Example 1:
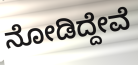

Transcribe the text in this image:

ನೋಡಿದ್ದೇವೆ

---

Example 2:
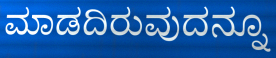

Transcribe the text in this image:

ಮಾಡದಿರುವುದನ್ನೂ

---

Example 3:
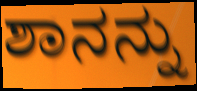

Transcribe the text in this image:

ಶಾನನ್ನು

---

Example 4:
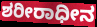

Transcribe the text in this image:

ಶರೀರಾಧೀನ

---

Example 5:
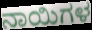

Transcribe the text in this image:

ನಾಯಿಗಳ